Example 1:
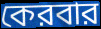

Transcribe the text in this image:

কেরবার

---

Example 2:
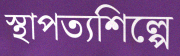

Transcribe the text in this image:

স্থাপত্যশিল্পে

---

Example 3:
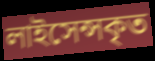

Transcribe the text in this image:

লাইসেন্সকৃত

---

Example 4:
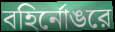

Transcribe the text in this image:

বহির্নোঙরে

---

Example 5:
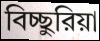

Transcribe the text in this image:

বিচ্ছুরিয়া